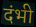
दंभी